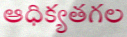
ఆధిక్యతగల